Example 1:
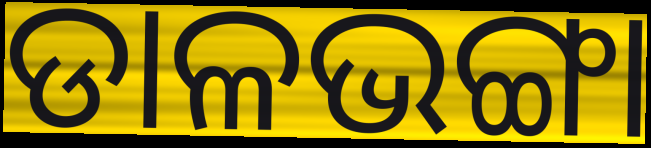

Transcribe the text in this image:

ଡାଳଭଙ୍ଗା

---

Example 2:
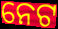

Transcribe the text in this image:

ନେଟ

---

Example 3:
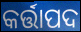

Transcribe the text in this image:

କର୍ତ୍ତାପଦ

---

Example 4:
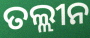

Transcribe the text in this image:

ତଲ୍ଲୀନ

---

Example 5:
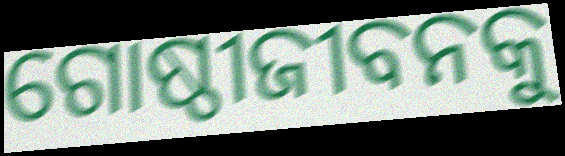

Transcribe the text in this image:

ଗୋଷ୍ଠୀଜୀବନକୁ